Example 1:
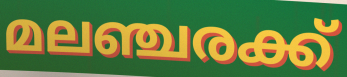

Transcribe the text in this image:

മലഞ്ചരക്ക്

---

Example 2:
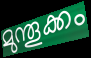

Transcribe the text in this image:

മുന്തൂക്കം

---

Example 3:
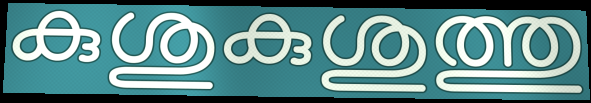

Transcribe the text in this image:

കുശുകുശുത്തു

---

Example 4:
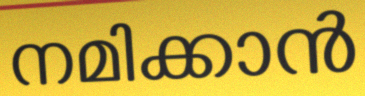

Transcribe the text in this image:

നമിക്കാൻ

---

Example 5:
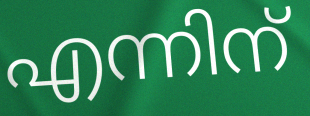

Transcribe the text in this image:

എന്നിന്